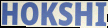
HOKSHI